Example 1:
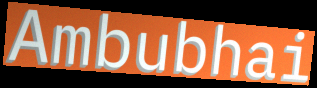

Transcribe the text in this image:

Ambubhai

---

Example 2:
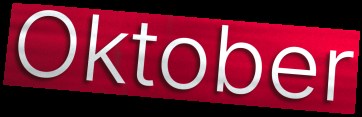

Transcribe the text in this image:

Oktober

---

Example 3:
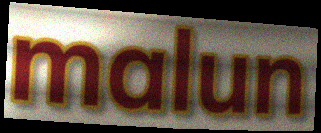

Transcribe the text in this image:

malun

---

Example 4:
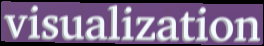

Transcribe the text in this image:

visualization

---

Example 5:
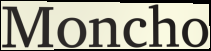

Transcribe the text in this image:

Moncho